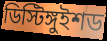
ডিস্টিঙ্গুইশড